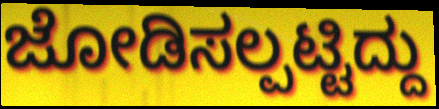
ಜೋಡಿಸಲ್ಪಟ್ಟಿದ್ದು